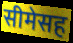
सीमेसह